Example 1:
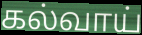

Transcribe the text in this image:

கல்வாய்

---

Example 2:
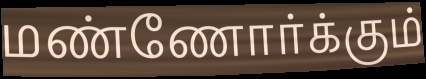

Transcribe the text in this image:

மண்ணோர்க்கும்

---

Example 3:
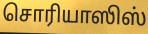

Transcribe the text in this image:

சொரியாஸிஸ்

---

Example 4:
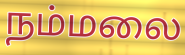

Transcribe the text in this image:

நம்மலை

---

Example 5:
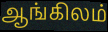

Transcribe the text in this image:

ஆங்கிலம்